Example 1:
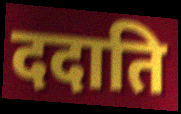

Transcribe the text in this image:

ददाति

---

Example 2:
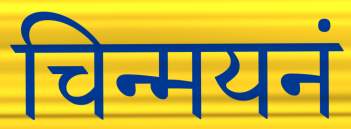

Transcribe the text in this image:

चिन्मयनं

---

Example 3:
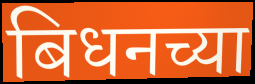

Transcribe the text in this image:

बिधनच्या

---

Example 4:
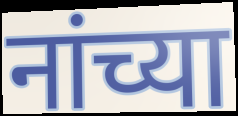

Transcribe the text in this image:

नांच्या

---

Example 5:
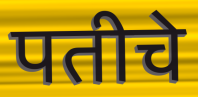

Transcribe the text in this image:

पतीचे